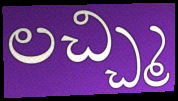
లచ్చ్మి